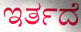
ಇರ್ತದೆ